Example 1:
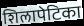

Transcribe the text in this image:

शिलापेटिका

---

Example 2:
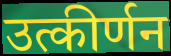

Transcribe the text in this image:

उत्कीर्णन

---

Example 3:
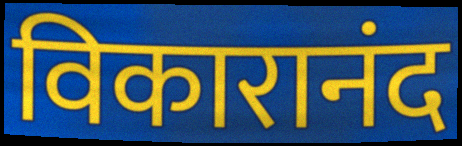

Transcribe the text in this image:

विकारानंद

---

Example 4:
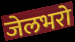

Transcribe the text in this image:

जेलभरो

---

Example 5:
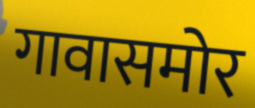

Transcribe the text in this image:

गावासमोर